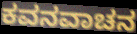
ಕವನವಾಚನ